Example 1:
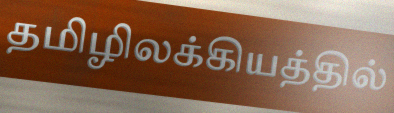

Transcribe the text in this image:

தமிழிலக்கியத்தில்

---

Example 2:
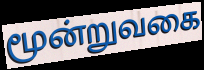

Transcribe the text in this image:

மூன்றுவகை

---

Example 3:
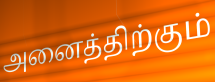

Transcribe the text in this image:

அனைத்திற்கும்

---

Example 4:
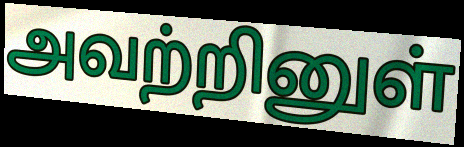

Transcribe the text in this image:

அவற்றினுள்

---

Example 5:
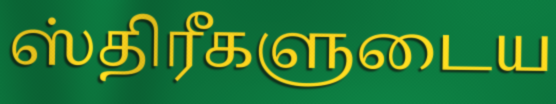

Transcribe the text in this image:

ஸ்திரீகளுடைய